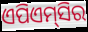
ଏପିଏମ୍‌ସିର